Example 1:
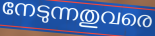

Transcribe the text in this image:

നേടുന്നതുവരെ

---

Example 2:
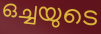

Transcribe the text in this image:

ഒച്ചയുടെ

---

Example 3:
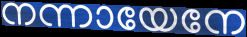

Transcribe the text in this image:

നന്നായേനേ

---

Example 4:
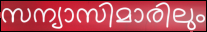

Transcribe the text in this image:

സന്യാസിമാരിലും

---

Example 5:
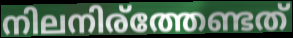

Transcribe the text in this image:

നിലനിര്ത്തേണ്ടത്